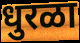
धुरळा